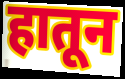
हातून